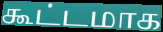
கூட்டமாக